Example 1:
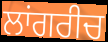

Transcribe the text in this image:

ਲਾਂਗਰੀਚ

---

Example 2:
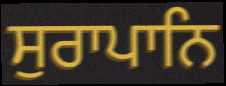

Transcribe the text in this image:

ਸੁਰਾਪਾਨਿ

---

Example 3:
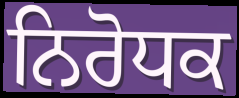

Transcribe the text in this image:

ਨਿਰੋਧਕ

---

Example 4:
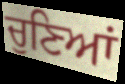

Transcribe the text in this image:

ਚੁਣਿਆਂ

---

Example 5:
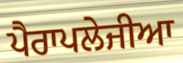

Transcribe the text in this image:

ਪੈਰਾਪਲੇਜੀਆ